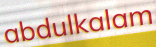
abdulkalam